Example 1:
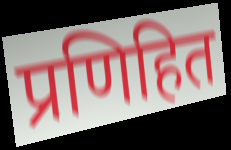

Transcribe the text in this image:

प्रणिहित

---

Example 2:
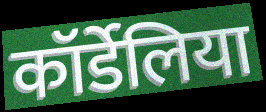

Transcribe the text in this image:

कॉर्डेलिया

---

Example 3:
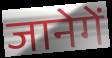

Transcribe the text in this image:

जानेगें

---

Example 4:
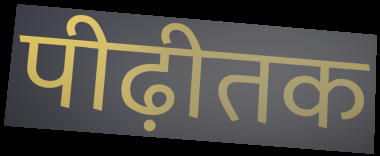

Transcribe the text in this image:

पीढ़ीतक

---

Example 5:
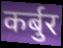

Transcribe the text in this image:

कर्बुर